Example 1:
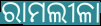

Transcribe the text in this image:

ରାମଲୀଳା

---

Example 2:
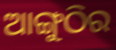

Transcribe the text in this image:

ଆଙ୍ଗୁଠିର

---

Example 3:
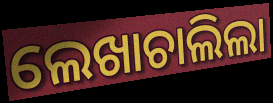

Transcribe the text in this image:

ଲେଖାଚାଲିଲା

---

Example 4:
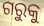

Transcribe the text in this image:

ଗରୁକୁ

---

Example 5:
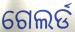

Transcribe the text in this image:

ଗେଲର୍ଡ